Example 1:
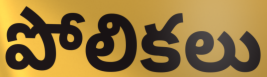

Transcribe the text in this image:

పోలికలు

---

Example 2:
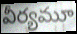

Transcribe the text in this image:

వీర్యమూ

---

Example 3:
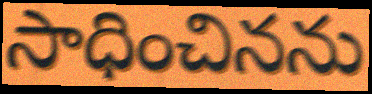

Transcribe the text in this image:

సాధించినను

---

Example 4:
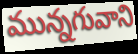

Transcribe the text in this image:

మున్నగువాని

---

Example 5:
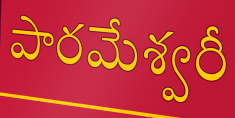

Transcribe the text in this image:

పారమేశ్వరీ